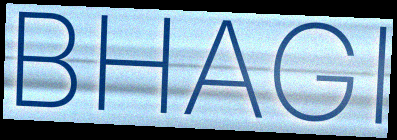
BHAGI